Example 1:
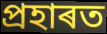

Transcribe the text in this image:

প্ৰহাৰত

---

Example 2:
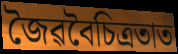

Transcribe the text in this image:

জৈৱবৈচিত্ৰতাত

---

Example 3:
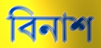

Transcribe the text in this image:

বিনাশ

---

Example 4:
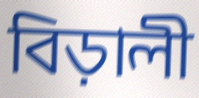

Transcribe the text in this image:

বিড়ালী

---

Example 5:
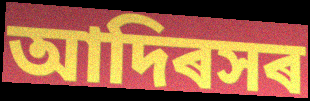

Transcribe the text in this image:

আদিৰসৰ